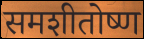
समशीतोष्ण